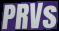
PRVs